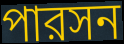
পারসন